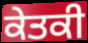
ਕੇਤਕੀ